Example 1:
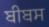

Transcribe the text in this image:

ਬੀਬਸ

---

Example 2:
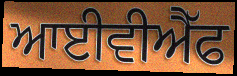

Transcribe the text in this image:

ਆਈਵੀਐੱਫ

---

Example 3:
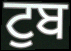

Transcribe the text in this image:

ਟੁਬ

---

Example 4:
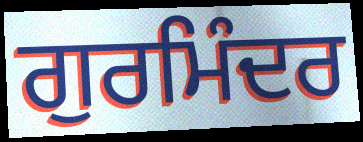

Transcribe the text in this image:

ਗੁਰਮਿੰਦਰ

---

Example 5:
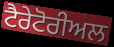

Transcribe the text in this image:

ਟੈਰੇਟੋਰੀਅਲ